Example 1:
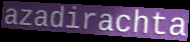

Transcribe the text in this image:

azadirachta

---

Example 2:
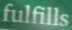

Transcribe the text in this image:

fulfills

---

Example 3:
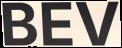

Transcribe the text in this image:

BEV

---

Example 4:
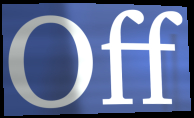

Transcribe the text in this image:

Off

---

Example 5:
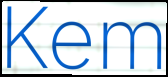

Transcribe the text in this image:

Kem